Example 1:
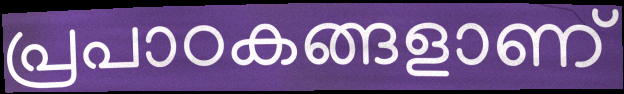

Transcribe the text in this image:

പ്രപാഠകങ്ങളാണ്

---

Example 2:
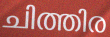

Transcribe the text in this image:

ചിത്തിര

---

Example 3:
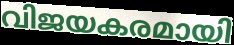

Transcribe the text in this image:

വിജയകരമായി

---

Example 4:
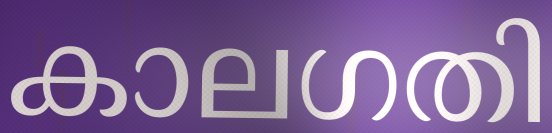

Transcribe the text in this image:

കാലഗതി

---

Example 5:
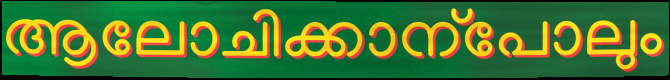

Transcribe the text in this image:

ആലോചിക്കാന്പോലും